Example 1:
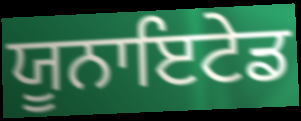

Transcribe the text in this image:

ਯੂਨਾਇਟੇਡ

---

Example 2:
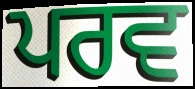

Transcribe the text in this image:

ਪਰਵ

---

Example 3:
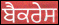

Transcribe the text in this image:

ਬੈਕਰੇਸ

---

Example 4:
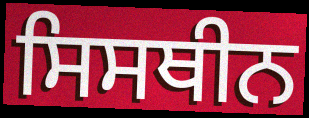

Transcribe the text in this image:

ਸਿਸਥੀਨ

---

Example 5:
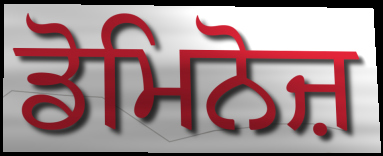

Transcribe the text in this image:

ਡੋਮਿਨੋਜ਼